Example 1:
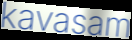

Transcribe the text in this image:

kavasam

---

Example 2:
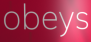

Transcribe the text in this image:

obeys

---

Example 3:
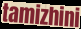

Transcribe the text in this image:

tamizhini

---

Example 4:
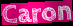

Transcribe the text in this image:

Caron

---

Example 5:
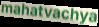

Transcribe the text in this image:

mahatvachya